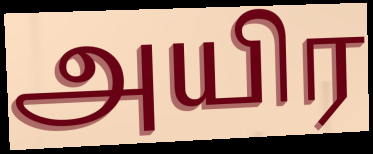
அயிர